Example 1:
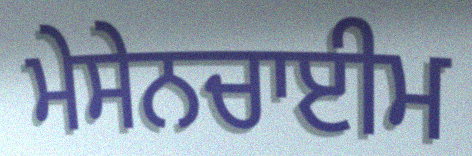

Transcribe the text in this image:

ਮੇਸੇਨਚਾਈਮ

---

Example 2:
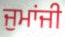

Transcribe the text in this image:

ਜੁਮਾਂਜੀ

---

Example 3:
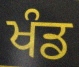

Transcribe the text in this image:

ਖੰਡ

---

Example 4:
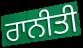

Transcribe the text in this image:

ਰਾਨੀਤੀ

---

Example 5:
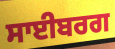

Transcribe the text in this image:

ਸਾਈਬਰਗ